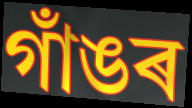
গাঁঙৰ